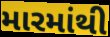
મારમાંથી